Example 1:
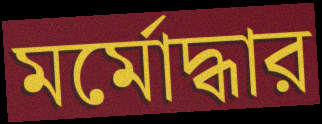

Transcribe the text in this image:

মর্মোদ্ধার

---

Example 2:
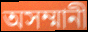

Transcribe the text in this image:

অসম্মানী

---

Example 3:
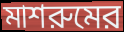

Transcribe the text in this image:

মাশরুমের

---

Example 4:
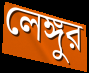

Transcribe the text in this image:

লেঙ্গুর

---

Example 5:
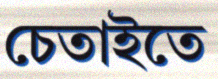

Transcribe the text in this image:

চেতাইতে